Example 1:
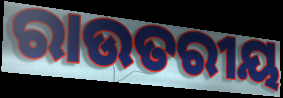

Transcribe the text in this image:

ରାଉତରୀୟ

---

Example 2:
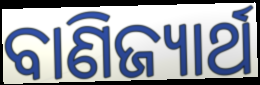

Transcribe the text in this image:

ବାଣିଜ୍ୟାର୍ଥ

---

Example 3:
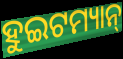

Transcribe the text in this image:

ହୁଇଟମ୍ୟାନ୍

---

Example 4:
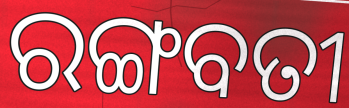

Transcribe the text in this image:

ରଙ୍ଗବତୀ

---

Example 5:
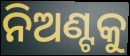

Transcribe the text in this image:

ନିଅଣ୍ଟକୁ